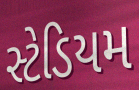
સ્ટેડિયમ